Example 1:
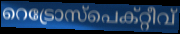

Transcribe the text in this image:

റെട്രോസ്പെക്റ്റീവ്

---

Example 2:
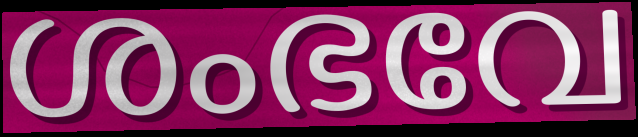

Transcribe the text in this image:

ശംഭവേ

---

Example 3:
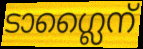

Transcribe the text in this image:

ടാഗ്ലൈന്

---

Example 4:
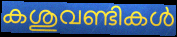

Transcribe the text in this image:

കശുവണ്ടികൾ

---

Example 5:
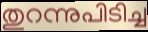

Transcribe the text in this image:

തുറന്നുപിടിച്ച